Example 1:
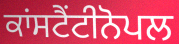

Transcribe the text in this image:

ਕਾਂਸਟੈਂਟੀਨੋਪਲ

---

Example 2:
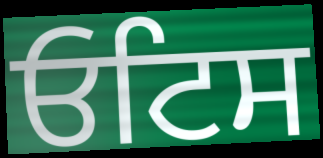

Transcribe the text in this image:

ਓਟਿਸ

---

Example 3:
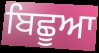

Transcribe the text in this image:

ਬਿਛੂਆ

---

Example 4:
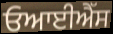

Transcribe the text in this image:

ਓਆਈਐੱਸ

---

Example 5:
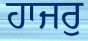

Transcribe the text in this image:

ਹਾਜਰੁ